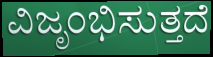
ವಿಜೃಂಭಿಸುತ್ತದೆ